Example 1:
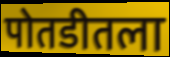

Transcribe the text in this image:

पोतडीतला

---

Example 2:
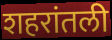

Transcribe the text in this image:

शहरांतली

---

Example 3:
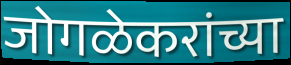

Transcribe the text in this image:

जोगळेकरांच्या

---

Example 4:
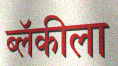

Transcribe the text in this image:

ब्लॅकीला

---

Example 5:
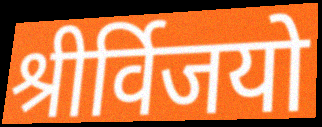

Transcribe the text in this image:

श्रीर्विजयो